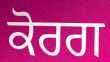
ਕੋਰਗ